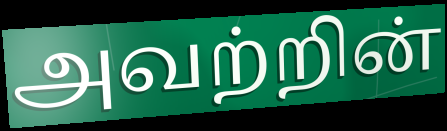
அவற்றின்